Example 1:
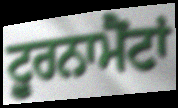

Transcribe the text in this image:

ਟੂਰਨਾਮੈਂਟਾਂ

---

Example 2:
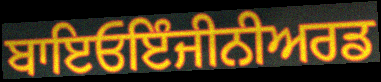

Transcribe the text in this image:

ਬਾਇਓਇੰਜੀਨੀਅਰਡ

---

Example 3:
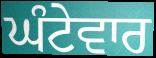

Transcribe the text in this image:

ਘੰਟੇਵਾਰ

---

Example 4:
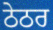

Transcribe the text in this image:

ਠੇਠਰ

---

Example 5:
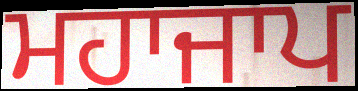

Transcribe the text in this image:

ਮਹਾਜਾਪ